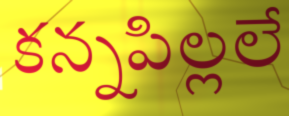
కన్నపిల్లలే